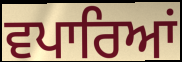
ਵਪਾਰਿਆਂ